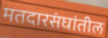
मतदारसंघांतील